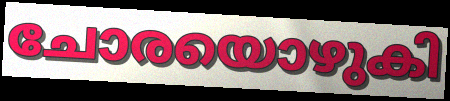
ചോരയൊഴുകി